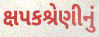
ક્ષપકશ્રેણીનું